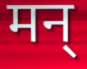
मन्